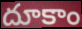
దూకాం